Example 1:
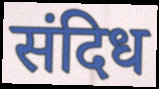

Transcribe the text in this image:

संदिध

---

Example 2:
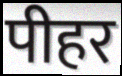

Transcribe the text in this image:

पीहर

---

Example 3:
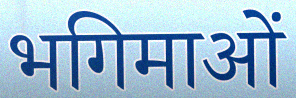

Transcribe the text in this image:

भगिमाओं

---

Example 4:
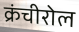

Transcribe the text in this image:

क्रंचीरोल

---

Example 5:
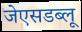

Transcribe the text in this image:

जेएसडब्‍लू